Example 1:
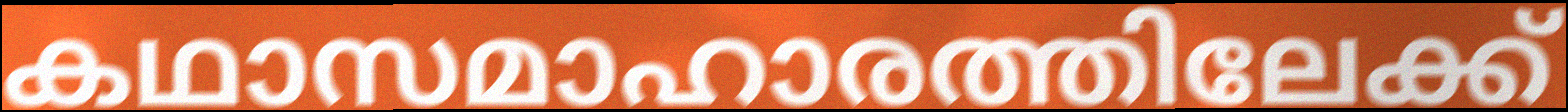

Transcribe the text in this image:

കഥാസമാഹാരത്തിലേക്ക്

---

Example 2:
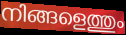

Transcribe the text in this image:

നിങ്ങളെത്തും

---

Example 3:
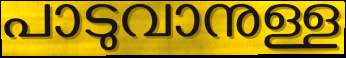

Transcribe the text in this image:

പാടുവാനുള്ള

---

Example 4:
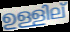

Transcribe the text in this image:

ഉള്ളില്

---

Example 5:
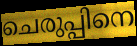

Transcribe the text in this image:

ചെരുപ്പിനെ